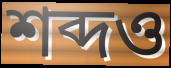
শব্দও